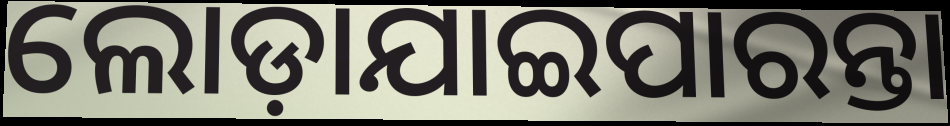
ଲୋଡ଼ାଯାଇପାରନ୍ତା